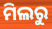
ମିଲରୁ